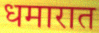
धमारात